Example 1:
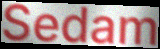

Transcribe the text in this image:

Sedam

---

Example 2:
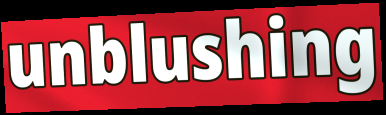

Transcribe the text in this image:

unblushing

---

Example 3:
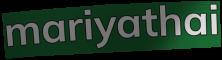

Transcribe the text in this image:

mariyathai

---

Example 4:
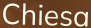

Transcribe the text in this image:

Chiesa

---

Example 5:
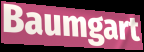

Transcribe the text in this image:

Baumgart